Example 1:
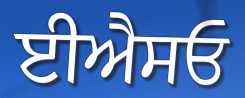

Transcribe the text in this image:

ਈਐਸਓ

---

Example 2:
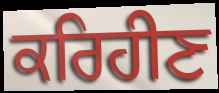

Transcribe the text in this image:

ਕਰਿਹੀਣ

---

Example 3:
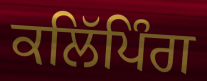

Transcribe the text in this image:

ਕਲਿੱਪਿੰਗ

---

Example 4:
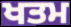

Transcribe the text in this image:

ਖਤਮ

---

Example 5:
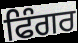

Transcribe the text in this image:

ਫਿੰਗਰ